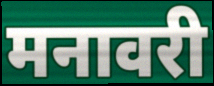
मनावरी